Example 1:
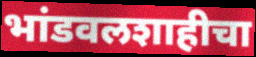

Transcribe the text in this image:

भांडवलशाहीचा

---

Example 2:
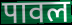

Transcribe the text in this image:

पावल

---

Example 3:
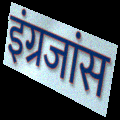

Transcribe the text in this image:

इंग्रजांस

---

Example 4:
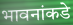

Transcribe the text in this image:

भावनांकडे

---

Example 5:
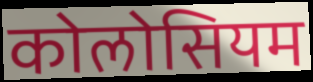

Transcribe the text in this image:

कोलोसियम